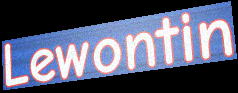
Lewontin